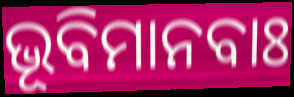
ଭୂବିମାନବାଃ